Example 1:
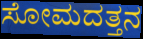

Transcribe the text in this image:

ಸೋಮದತ್ತನ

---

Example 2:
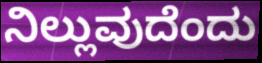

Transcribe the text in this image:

ನಿಲ್ಲುವುದೆಂದು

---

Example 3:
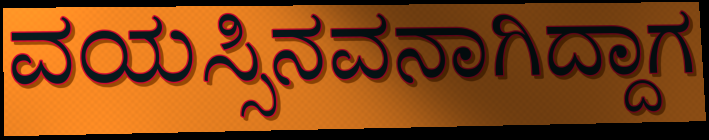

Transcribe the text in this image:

ವಯಸ್ಸಿನವನಾಗಿದ್ದಾಗ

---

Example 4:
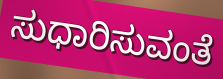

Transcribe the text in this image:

ಸುಧಾರಿಸುವಂತೆ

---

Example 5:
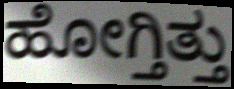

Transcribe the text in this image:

ಹೋಗ್ತಿತ್ತು